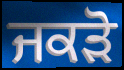
ਜਕੜੋ